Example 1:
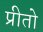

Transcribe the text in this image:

प्रीतो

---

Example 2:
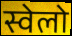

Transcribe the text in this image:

स्वेलो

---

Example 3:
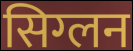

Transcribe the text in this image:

सिग्‍लन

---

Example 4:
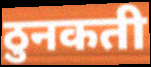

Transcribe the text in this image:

ठुनकती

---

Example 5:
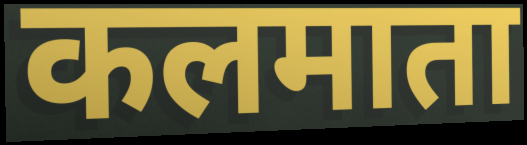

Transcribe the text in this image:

कलमाता